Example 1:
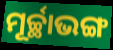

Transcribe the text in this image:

ମୂର୍ଚ୍ଛାଭଙ୍ଗ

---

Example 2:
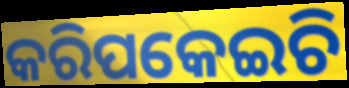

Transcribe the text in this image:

କରିପକେଇଚି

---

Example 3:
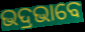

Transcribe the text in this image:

ଭଦ୍ରଭାବେ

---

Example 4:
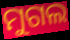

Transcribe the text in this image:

ମୁଗଲ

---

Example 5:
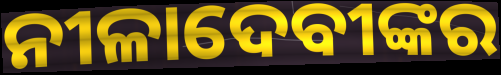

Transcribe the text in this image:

ନୀଳାଦେବୀଙ୍କର